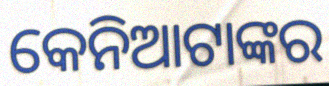
କେନିଆଟାଙ୍କର